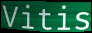
Vitis